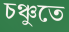
চঞ্চুতে